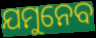
ଯମୁନେବ